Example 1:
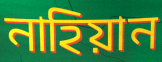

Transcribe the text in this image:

নাহিয়ান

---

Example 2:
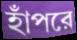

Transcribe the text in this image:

হাঁপরে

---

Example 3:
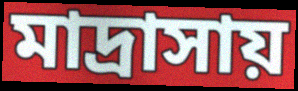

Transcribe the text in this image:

মাদ্রাসায়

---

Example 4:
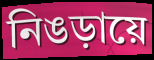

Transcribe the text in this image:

নিঙড়ায়ে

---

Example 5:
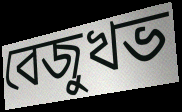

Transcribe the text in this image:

বেজুখভ